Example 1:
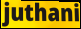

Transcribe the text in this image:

juthani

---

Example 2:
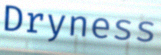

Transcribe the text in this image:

Dryness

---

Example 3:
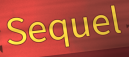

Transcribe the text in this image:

Sequel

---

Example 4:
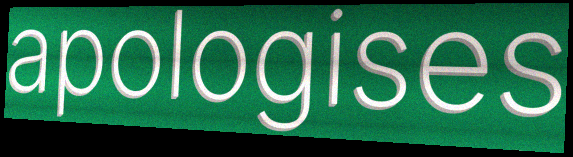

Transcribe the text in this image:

apologises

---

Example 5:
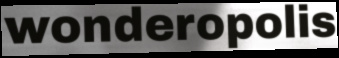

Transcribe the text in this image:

wonderopolis